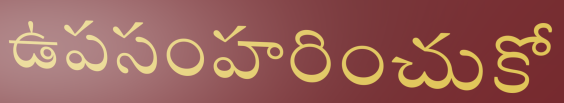
ఉపసంహరించుకో